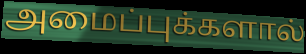
அமைப்புக்களால்